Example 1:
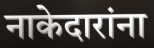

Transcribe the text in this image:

नाकेदारांना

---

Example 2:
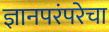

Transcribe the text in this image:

ज्ञानपरंपरेचा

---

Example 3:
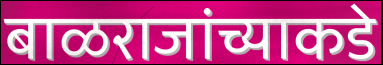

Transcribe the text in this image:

बाळराजांच्याकडे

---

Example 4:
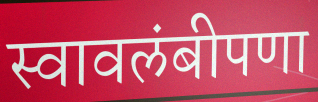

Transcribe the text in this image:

स्वावलंबीपणा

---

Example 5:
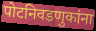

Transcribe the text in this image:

पोटनिवडणुकांना